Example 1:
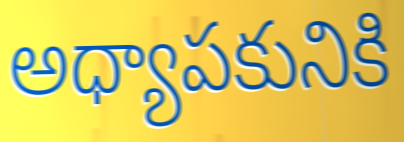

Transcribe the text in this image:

అధ్యాపకునికి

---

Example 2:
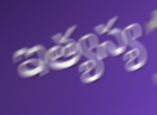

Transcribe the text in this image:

ఇత్యస్య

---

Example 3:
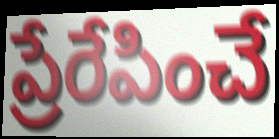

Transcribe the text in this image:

ప్రేరేపించే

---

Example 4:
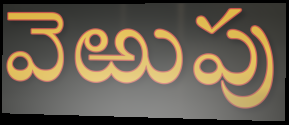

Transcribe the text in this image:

వెఱుపు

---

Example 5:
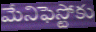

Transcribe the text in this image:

మేనిఫెస్టోకు